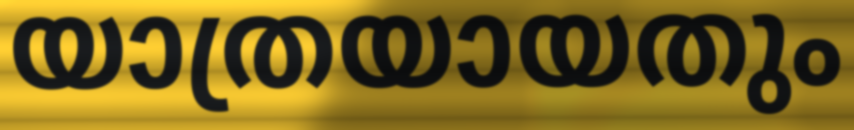
യാത്രയായതും